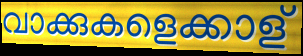
വാക്കുകളെക്കാള്